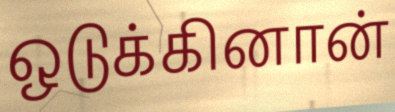
ஒடுக்கினான்